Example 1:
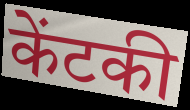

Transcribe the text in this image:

केंटकी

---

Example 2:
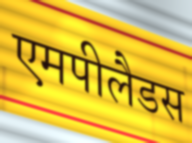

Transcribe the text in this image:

एमपीलैडस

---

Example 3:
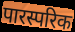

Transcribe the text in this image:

पारस्परिक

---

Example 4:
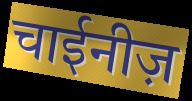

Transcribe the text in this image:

चाईनीज़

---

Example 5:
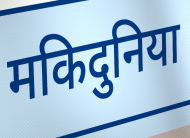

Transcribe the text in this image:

मकिदुनिया